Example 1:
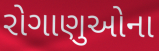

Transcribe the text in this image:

રોગાણુઓના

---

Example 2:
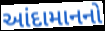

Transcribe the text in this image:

આંદામાનનો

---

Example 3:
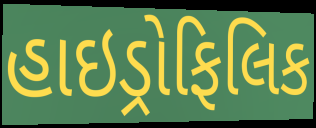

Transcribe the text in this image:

હાઇડ્રોફિલિક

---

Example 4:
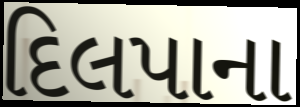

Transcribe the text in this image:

દિલપાના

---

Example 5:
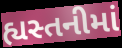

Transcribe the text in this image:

હ્યસ્તનીમાં